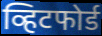
व्हिटफोर्ड